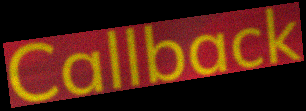
Callback